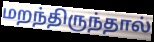
மறந்திருந்தால்